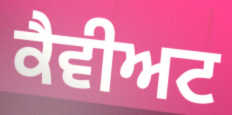
ਕੈਵੀਅਟ